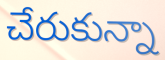
చేరుకున్నా